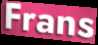
Frans